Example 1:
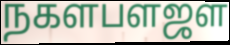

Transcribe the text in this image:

நகளபளஜள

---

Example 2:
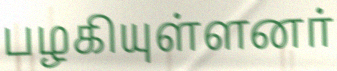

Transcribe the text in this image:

பழகியுள்ளனர்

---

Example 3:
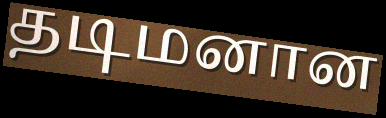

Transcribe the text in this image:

தடிமனான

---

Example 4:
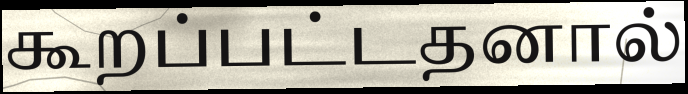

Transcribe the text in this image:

கூறப்பட்டதனால்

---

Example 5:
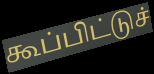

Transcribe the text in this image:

கூப்பிட்டுச்